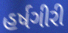
હર્ષગીરી